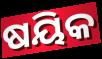
ଷୟିକ